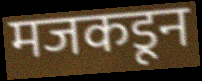
मजकडून